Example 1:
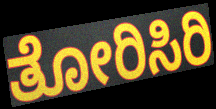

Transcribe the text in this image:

ತೋರಿಸಿರಿ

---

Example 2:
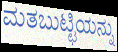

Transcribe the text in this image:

ಮತಬುಟ್ಟಿಯನ್ನು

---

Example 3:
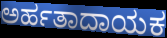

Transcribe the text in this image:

ಅರ್ಹತಾದಾಯಕ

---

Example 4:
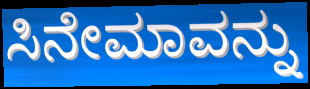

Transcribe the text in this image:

ಸಿನೇಮಾವನ್ನು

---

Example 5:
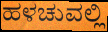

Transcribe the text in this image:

ಹಳಚುವಲ್ಲಿ